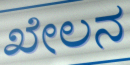
ಖೇಲನ